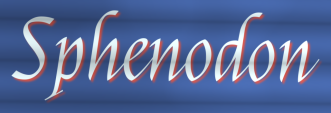
Sphenodon